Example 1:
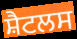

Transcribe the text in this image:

ਸ਼ੈਟਲਸ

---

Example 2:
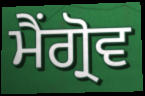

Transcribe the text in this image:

ਮੈਂਗ੍ਰੋਵ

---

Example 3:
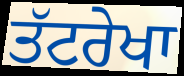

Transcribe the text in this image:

ਤੱਟਰੇਖਾ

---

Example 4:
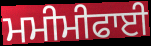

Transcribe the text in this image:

ਮਮੀਮੀਫਾਈ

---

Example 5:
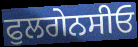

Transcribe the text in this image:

ਫੁਲਗੇਨਸੀਓ